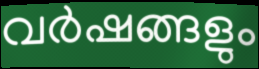
വർഷങ്ങളും